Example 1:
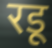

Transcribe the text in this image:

रडू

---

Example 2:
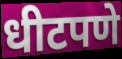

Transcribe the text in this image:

धीटपणे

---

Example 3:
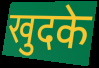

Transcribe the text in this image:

खुदके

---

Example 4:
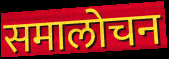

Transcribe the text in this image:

समालोचन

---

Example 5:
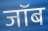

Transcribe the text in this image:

जॉब